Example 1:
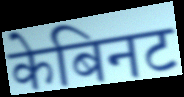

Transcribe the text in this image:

केबिनट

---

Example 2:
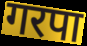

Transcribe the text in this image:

गरपा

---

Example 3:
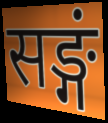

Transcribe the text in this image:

सङ्गं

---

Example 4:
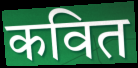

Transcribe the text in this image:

कवित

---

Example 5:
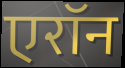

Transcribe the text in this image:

एरॉन